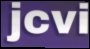
jcvi